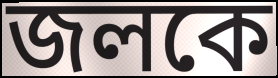
জলকে